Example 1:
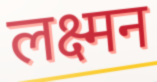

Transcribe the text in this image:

लक्ष्मन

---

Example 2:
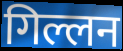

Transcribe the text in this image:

गिल्लन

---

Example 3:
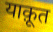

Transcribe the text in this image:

याक़ूत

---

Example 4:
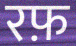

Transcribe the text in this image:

रफ़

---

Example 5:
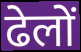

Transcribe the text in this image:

ढेलों